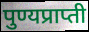
पुण्यप्राप्ती